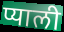
प्याली